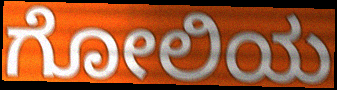
ಗೋಲಿಯ